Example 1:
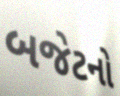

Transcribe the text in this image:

બજેટનો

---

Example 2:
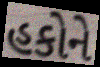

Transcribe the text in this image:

હકોને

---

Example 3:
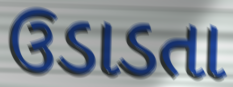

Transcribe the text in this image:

ઉડાડતા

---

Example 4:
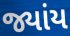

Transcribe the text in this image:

જ્યાંય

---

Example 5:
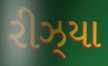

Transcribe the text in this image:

રીઝ્યા